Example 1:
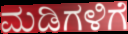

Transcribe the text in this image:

ಮಡಿಗಳಿಗೆ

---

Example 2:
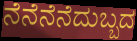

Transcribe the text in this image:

ನೆನೆನೆನೆದುಬ್ಬದ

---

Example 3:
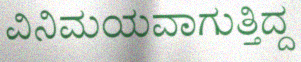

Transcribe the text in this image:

ವಿನಿಮಯವಾಗುತ್ತಿದ್ದ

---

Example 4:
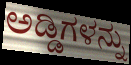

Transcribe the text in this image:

ಅಡ್ಡಿಗಳನ್ನು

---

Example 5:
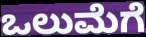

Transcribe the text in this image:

ಒಲುಮೆಗೆ